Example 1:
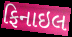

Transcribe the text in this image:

ફિનાઇલ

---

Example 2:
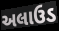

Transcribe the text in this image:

અલાઉડ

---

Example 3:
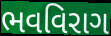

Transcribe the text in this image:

ભવવિરાગ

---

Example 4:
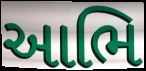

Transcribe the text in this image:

આભિ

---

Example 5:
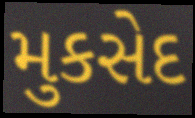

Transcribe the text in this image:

મુકસેદ